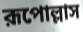
রূপোল্লাস